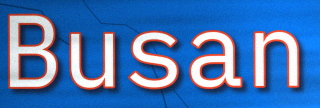
Busan